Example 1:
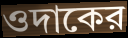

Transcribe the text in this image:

ওদাকের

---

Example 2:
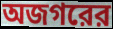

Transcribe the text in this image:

অজগরের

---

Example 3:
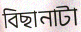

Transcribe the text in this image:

বিছানাটা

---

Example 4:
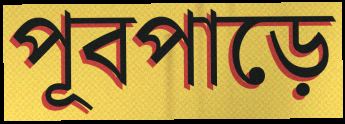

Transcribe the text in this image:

পূবপাড়ে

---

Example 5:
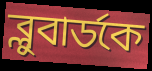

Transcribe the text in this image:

ব্লুবার্ডকে